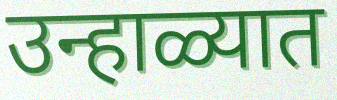
उन्हाळ्यात